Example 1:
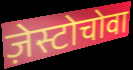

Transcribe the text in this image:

ज़ेस्टोचोवा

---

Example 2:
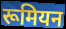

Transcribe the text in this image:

रूमियन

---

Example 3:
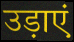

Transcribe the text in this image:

उड़ाएं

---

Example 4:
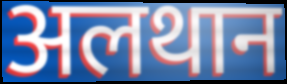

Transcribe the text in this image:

अलथान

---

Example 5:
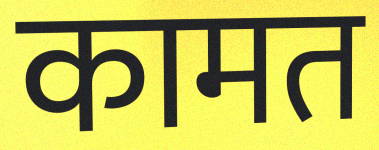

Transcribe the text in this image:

कामत